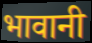
भावानी